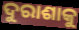
ଦୁରାଶାକୁ